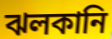
ঝলকানি